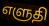
எளுதி